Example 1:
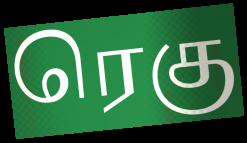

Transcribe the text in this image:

ரெகு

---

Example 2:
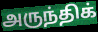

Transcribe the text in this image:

அருந்திக்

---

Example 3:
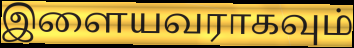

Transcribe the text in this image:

இளையவராகவும்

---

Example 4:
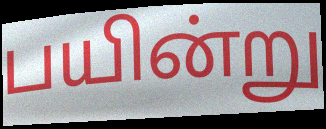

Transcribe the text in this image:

பயின்று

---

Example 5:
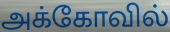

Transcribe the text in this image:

அக்கோவில்